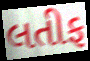
લતીફ